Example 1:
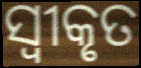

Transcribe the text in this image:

ସ୍ଵୀକୃତ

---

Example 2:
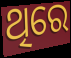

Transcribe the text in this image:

ଥିରେ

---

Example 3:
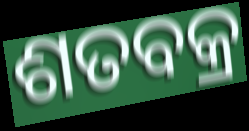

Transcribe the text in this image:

ଶତବକ୍ର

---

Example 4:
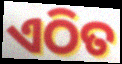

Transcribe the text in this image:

ଏଠିତ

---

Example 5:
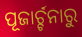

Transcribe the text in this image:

ପୂଜାର୍ଚ୍ଚନାରୁ